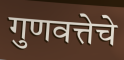
गुणवत्तेचे